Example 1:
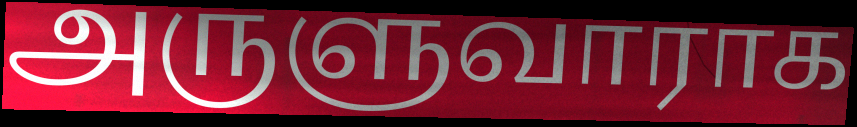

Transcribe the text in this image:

அருளுவாராக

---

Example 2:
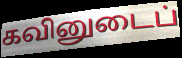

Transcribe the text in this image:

கவினுடைப்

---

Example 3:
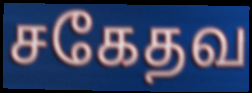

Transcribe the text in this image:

சகேதவ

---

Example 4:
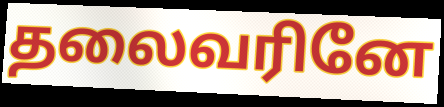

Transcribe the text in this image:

தலைவரினே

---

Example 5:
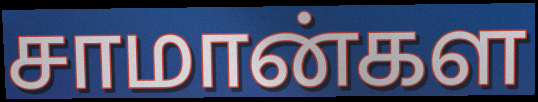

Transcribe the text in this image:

சாமான்கள